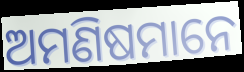
ଅମଣିଷମାନେ